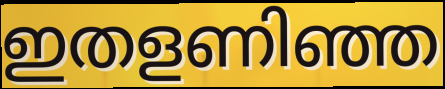
ഇതളണിഞ്ഞ